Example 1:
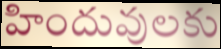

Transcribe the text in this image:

హిందువులకు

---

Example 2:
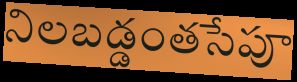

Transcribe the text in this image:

నిలబడ్డంతసేపూ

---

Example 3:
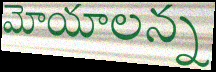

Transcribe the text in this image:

మోయాలన్న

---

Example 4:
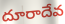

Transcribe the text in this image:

దూరాదేవ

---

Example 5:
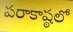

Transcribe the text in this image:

పరాకాష్ఠలో